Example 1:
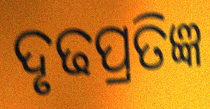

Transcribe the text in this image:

ଦୃଢପ୍ରତିଜ୍ଞ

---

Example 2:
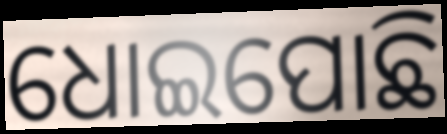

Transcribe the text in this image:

ଧୋଇପୋଛି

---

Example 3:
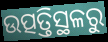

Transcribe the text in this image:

ଉତ୍ପତ୍ତିସ୍ଥଳରୁ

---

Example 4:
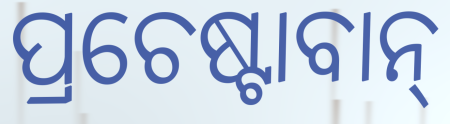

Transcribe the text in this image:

ପ୍ରଚେଷ୍ଟାବାନ୍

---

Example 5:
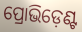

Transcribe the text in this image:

ପ୍ରୋଭିଡ଼େଣ୍ଟ